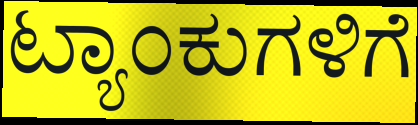
ಟ್ಯಾಂಕುಗಳಿಗೆ